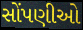
સોંપણીઓ